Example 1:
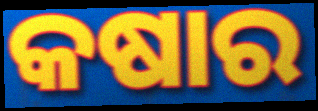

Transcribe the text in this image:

କଷାର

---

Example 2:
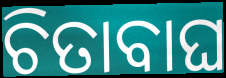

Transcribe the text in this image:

ଚିତାବାଘ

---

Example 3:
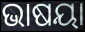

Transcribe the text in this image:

ଭାଷୟା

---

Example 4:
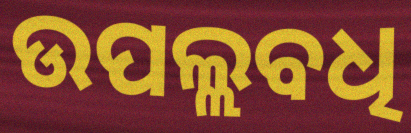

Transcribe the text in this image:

ଉପଲ୍ଲବଧି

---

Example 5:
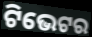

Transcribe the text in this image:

ଟିଭେଟର